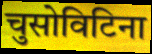
चुसोविटिना